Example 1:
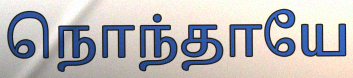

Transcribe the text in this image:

நொந்தாயே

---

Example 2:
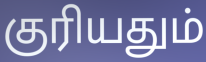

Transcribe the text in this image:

குரியதும்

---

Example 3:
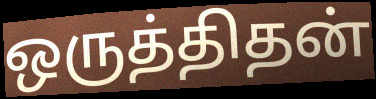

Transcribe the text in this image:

ஒருத்திதன்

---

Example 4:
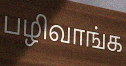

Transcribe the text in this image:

பழிவாங்க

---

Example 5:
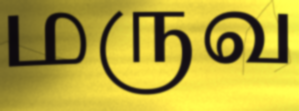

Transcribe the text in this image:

மருவ